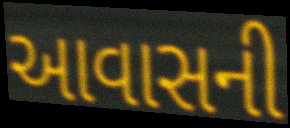
આવાસની